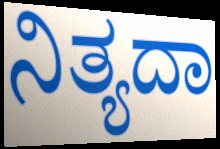
ನಿತ್ಯದಾ